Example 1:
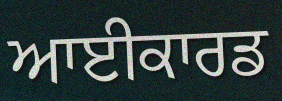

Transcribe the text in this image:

ਆਈਕਾਰਡ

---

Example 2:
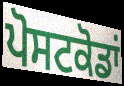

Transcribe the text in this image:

ਪੋਸਟਕੋਡਾਂ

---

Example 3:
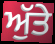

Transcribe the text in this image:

ਅੁੱਤੇ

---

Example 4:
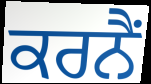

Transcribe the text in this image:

ਕਰਨੈਂ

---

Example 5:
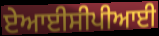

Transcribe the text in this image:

ਏਆਈਸੀਪੀਆਈ